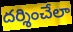
దర్శించేలా